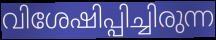
വിശേഷിപ്പിച്ചിരുന്ന